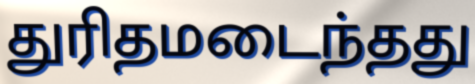
துரிதமடைந்தது